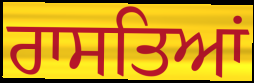
ਰਾਸਤਿਆਂ